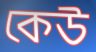
কেউ